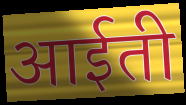
आईती